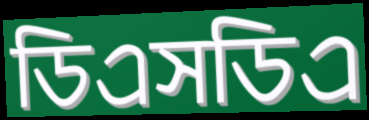
ডিএসডিএ